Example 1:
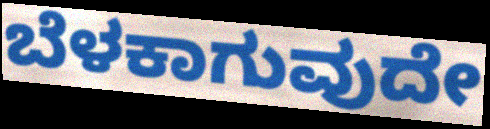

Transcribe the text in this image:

ಬೆಳಕಾಗುವುದೇ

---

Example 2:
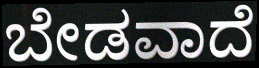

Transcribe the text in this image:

ಬೇಡವಾದೆ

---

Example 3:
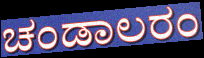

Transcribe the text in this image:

ಚಂಡಾಲರಂ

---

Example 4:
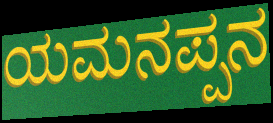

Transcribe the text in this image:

ಯಮನಪ್ಪನ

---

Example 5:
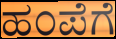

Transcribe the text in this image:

ಹಂಪೆಗೆ